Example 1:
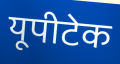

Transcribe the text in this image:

यूपीटेक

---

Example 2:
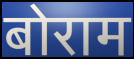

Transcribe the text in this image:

बोराम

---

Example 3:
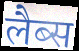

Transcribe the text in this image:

लैब्स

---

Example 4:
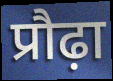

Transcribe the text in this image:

प्रौढ़ा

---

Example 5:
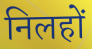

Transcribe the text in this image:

निलहों